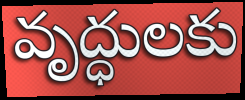
వృద్ధులకు